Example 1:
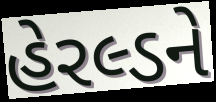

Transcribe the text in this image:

હેરલ્ડને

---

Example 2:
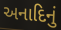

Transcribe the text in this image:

અનાદિનું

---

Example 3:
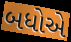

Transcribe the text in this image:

બધોએ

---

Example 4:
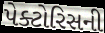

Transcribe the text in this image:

પેક્ટોરિસની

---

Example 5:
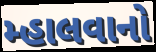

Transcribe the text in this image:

મ્હાલવાનો